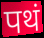
पथं